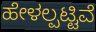
ಹೇಳಲ್ಪಟ್ಟಿವೆ